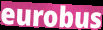
eurobus